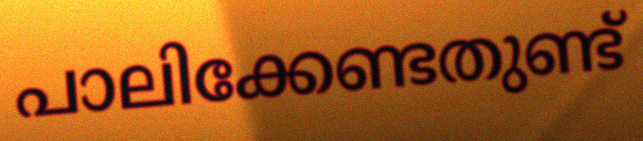
പാലിക്കേണ്ടതുണ്ട്